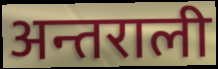
अन्तराली